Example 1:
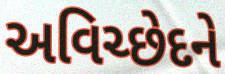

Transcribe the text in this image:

અવિચ્છેદને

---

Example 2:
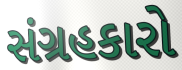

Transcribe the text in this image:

સંગ્રહકારો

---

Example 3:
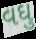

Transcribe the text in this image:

વઘુ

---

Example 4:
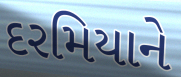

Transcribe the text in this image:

દરમિયાને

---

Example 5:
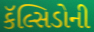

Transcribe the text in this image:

કૅલ્સિડોની